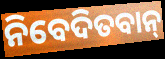
ନିବେଦିତବାନ୍